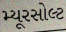
મ્યૂરસોલ્ટ